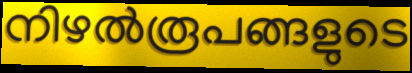
നിഴൽരൂപങ്ങളുടെ